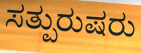
ಸತ್ಪುರುಷರು